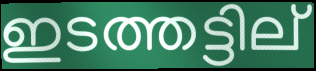
ഇടത്തട്ടില്